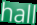
hall